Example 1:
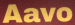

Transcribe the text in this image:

Aavo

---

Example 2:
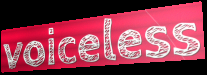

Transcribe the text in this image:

voiceless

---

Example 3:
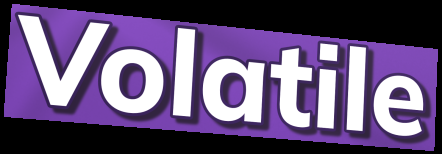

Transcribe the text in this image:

Volatile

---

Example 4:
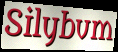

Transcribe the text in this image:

Silybum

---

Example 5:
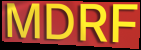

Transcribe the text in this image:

MDRF